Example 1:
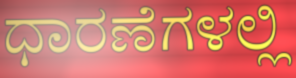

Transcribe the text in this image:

ಧಾರಣೆಗಳಲ್ಲಿ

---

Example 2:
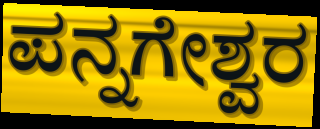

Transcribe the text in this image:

ಪನ್ನಗೇಶ್ವರ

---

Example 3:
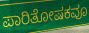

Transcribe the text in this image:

ಪಾರಿತೋಷಕವೂ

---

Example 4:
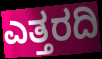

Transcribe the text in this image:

ಎತ್ತರದಿ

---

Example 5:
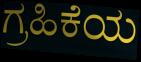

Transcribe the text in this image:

ಗ್ರಹಿಕೆಯ